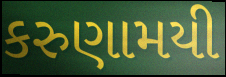
કરુણામયી